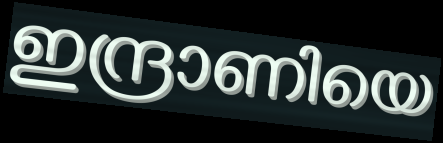
ഇന്ദ്രാണിയെ